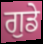
ਗੁਡੇ